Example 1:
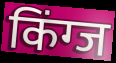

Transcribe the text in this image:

किंग्ज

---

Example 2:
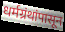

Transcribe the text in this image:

धर्मग्रंथांपासून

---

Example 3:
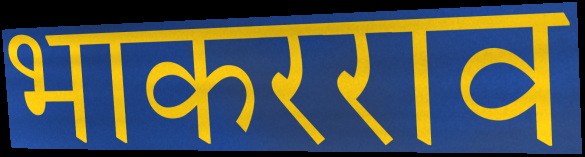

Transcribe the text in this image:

भाकरराव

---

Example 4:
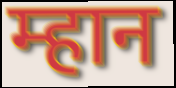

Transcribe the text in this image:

म्हान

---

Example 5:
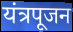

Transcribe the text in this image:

यंत्रपूजन